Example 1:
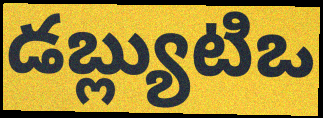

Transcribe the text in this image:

డబ్ల్యుటిఒ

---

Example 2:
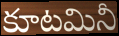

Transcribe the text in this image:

కూటమినీ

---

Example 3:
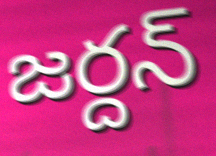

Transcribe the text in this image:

జర్దన్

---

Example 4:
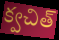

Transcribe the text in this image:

క్వచిత్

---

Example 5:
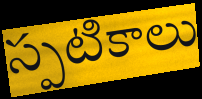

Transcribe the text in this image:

స్పటికాలు